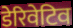
डेरिवेटिव